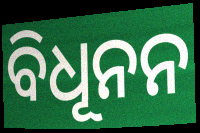
ବିଧୂନନ